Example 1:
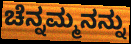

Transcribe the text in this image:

ಚೆನ್ನಮ್ಮನನ್ನು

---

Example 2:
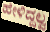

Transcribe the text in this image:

ಹೇಳಿದ್ದಲ್ವ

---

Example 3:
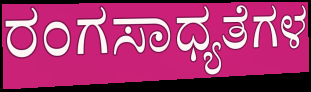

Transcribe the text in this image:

ರಂಗಸಾಧ್ಯತೆಗಳ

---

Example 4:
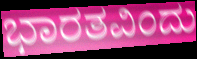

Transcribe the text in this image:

ಭಾರತವಿಂದು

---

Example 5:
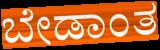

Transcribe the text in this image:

ಬೇಡಾಂತ